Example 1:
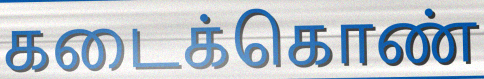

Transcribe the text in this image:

கடைக்கொண்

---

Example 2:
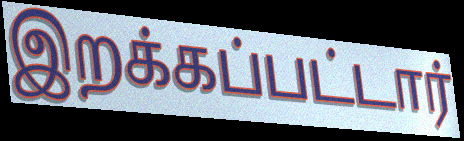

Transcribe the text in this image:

இறக்கப்பட்டார்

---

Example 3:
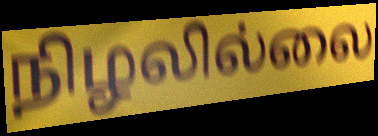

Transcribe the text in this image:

நிழலில்லை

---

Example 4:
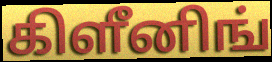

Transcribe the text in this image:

கிளீனிங்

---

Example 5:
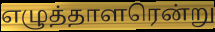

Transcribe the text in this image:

எழுத்தாளரென்று